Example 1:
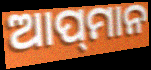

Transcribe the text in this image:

ଆପ୍‌ମାନ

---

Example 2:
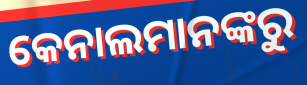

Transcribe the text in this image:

କେନାଲମାନଙ୍କରୁ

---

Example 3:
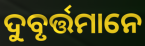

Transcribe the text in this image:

ଦୁବୃର୍ତ୍ତମାନେ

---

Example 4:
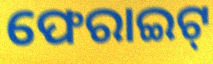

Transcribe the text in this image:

ଫେରାଇଟ୍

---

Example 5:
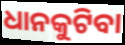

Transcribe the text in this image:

ଧାନକୁଟିବା